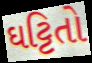
ઘટ્ટિતો